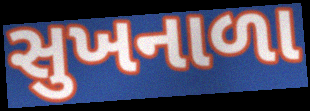
સુખનાળા